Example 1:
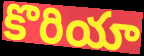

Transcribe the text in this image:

కొరియా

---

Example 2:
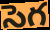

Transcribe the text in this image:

సెగ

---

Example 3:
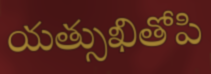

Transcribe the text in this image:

యత్సుఖితోపి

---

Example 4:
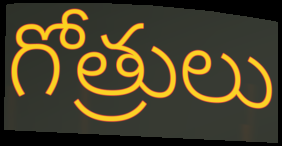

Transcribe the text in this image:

గోత్రులు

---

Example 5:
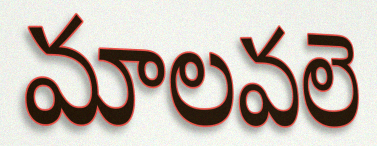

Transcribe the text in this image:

మాలవలె